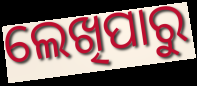
ଲେଖିପାରୁ